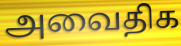
அவைதிக